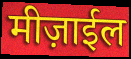
मीज़ाईल